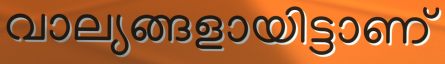
വാല്യങ്ങളായിട്ടാണ്